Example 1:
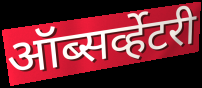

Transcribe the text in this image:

ऑब्सर्व्हेटरी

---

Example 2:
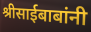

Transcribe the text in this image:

श्रीसाईबाबांनी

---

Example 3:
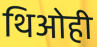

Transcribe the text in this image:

थिओही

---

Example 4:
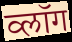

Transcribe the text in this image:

व्लॉग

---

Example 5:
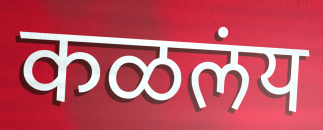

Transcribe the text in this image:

कळलंय